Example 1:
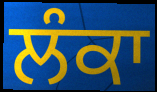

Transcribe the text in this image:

ਲੰਕਾ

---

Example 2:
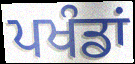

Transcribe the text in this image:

ਪਖੰਡਾਂ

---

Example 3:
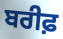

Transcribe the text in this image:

ਬਰੀਫ਼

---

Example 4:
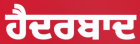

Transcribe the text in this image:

ਹੈਦਰਬਾਦ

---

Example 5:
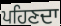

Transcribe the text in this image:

ਪਹਿਣਦਾ